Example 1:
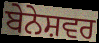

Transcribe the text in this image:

ਬੇਨੇਸ਼ਵਰ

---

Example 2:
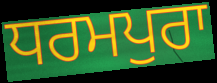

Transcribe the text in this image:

ਧਰਮਪੁਰਾ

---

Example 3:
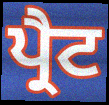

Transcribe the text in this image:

ਪ੍ਰੈਟ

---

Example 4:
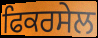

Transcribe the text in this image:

ਫਿਕਰਸੇਲ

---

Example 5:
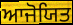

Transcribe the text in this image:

ਆਜੋਯਿਤ